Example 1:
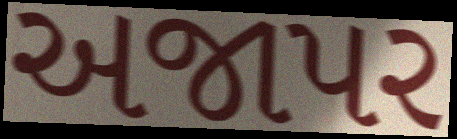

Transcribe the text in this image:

અજાપર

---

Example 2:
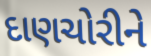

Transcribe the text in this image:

દાણચોરીને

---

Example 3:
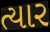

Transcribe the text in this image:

ત્યાર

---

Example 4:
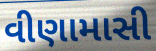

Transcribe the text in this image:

વીણામાસી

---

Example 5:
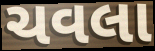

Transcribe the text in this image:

ચવલા